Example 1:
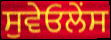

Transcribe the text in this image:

ਸੁਵੇਓਲੇਂਸ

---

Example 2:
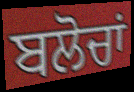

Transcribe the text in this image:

ਬਲੋਚਾਂ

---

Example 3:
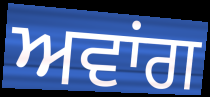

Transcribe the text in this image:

ਅਵਾਂਗ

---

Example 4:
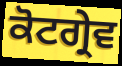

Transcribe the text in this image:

ਕੋਟਗ੍ਰੇਵ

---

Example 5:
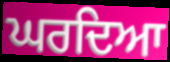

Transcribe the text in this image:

ਘਰਦਿਆ